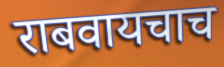
राबवायचाच